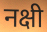
नक्षी